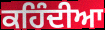
ਕਹਿੰਦੀਆ